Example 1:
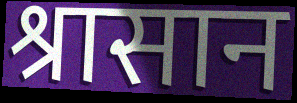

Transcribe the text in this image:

श्रासान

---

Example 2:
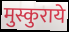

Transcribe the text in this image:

मुस्कुराये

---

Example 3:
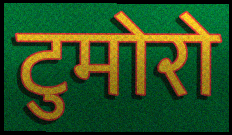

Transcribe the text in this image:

टुमोरो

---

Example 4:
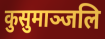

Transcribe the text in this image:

कुसुमाञ्जलि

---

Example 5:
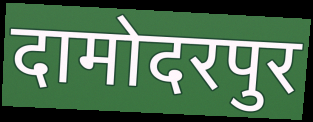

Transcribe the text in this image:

दामोदरपुर